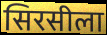
सिरसीला